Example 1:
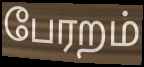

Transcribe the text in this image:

பேரறம்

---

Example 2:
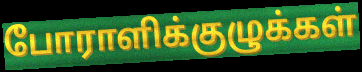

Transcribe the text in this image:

போராளிக்குழுக்கள்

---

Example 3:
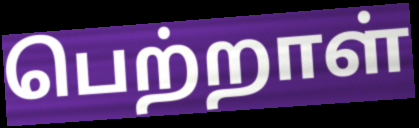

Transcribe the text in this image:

பெற்றாள்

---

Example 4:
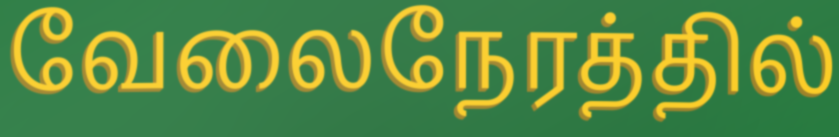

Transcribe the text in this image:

வேலைநேரத்தில்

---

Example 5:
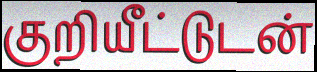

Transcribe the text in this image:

குறியீட்டுடன்